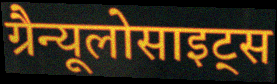
ग्रैन्यूलोसाइट्स